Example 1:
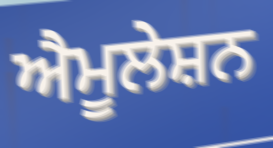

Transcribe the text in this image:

ਐਮੂਲੇਸ਼ਨ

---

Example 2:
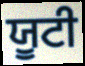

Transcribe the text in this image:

ਯੂਟੀ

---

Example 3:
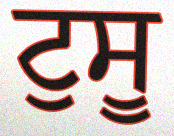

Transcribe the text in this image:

ਟੁਸੂ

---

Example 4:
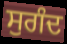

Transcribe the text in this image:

ਸੁਗੰਦ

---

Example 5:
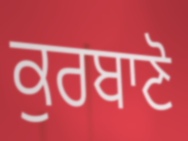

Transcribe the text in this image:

ਕੁਰਬਾਣੋ